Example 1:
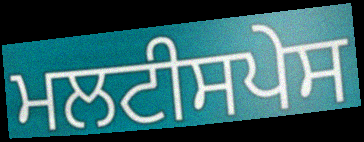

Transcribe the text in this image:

ਮਲਟੀਸਪੇਸ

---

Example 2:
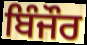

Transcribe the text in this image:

ਬਿੰਜੌਰ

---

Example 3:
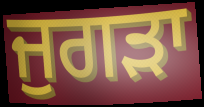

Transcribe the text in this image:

ਜੁਗੜਾ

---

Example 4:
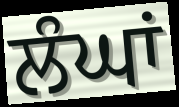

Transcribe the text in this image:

ਲੰਘਾਂ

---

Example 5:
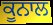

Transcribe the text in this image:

ਕੂਨਾਲ